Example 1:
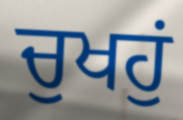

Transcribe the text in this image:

ਚੁਖਹੁਂ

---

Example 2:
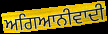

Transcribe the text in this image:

ਅਗਿਆਨੀਵਾਦੀ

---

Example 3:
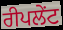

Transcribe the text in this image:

ਰੀਪਲੇਂਟ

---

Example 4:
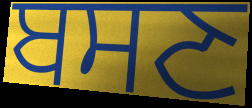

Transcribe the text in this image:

ਬਸਣ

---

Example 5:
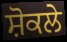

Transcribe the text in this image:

ਸ਼ੋਕਲੇ